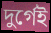
দুর্গেই